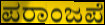
ಪರಾಂಜಪೆ